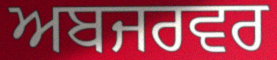
ਅਬਜਰਵਰ